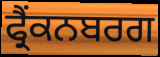
ਫ੍ਰੈਂਕਨਬਰਗ